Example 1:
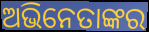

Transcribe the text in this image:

ଅଭିନେତାଙ୍କର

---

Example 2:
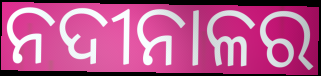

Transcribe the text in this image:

ନଦୀନାଳର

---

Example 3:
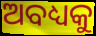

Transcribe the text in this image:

ଅବଧ୍ୟକୁ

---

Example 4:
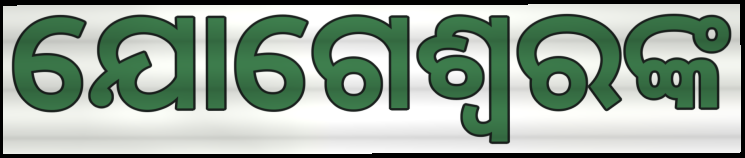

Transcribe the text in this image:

ଯୋଗେଶ୍ୱରଙ୍କ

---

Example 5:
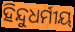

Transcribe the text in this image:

ହିନ୍ଦୁଧର୍ମୀୟ